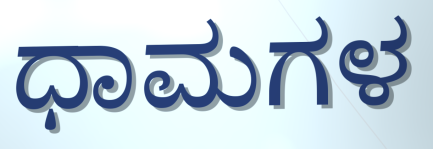
ಧಾಮಗಳ